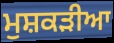
ਮੁਸ਼ਕੜੀਆ